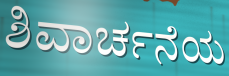
ಶಿವಾರ್ಚನೆಯ